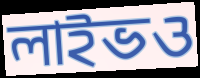
লাইভও